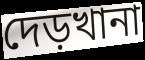
দেড়খানা